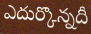
ఎదుర్కొన్నదీ